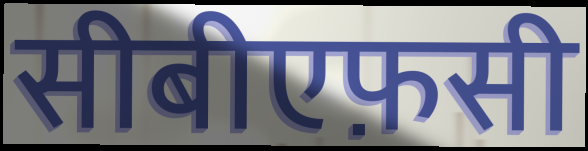
सीबीएफ़सी